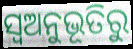
ସ୍ୱଅନୁଭୂତିରୁ